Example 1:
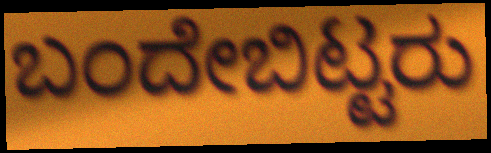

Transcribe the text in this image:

ಬಂದೇಬಿಟ್ಟರು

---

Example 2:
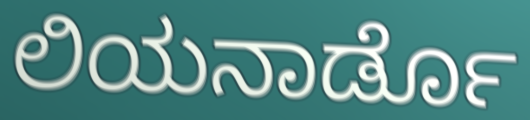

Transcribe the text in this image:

ಲಿಯನಾರ್ಡೊ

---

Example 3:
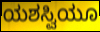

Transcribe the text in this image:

ಯಶಸ್ವಿಯೂ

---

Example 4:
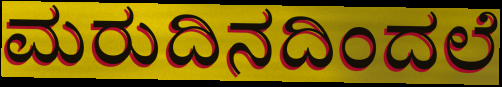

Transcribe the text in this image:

ಮರುದಿನದಿಂದಲೆ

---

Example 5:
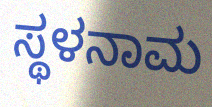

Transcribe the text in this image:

ಸ್ಥಳನಾಮ